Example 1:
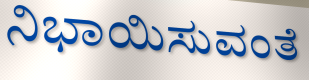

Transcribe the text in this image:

ನಿಭಾಯಿಸುವಂತೆ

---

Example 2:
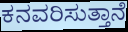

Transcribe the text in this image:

ಕನವರಿಸುತ್ತಾನೆ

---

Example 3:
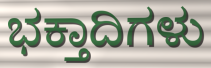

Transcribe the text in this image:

ಭಕ್ತಾದಿಗಳು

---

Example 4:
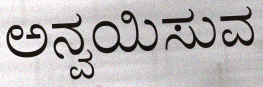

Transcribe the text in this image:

ಅನ್ವಯಿಸುವ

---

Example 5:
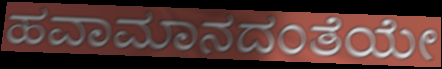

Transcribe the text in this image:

ಹವಾಮಾನದಂತೆಯೇ